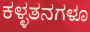
ಕಳ್ಳತನಗಳೂ